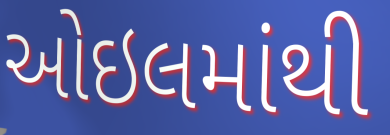
ઓઇલમાંથી